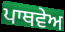
ਪਾਥਵੇਅ